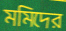
মমিদের